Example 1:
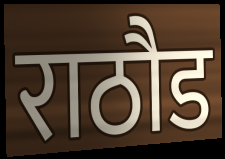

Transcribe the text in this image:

राठौड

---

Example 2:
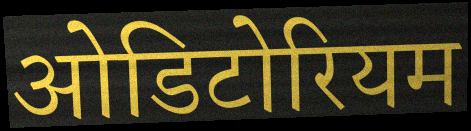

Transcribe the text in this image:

ओडिटोरियम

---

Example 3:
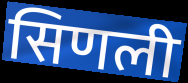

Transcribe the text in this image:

सिणली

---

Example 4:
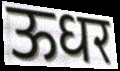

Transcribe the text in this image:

ऊधर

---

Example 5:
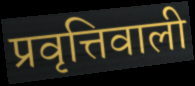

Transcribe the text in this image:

प्रवृत्तिवाली